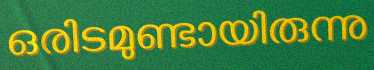
ഒരിടമുണ്ടായിരുന്നു